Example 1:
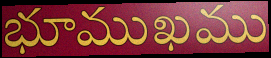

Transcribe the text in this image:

భూముఖము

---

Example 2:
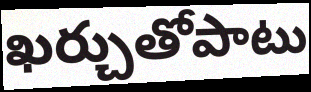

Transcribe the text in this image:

ఖర్చుతోపాటు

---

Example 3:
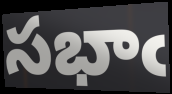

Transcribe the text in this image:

సభాఁ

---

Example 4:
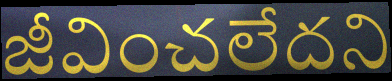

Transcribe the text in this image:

జీవించలేదని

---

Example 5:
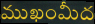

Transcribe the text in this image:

ముఖంమీద